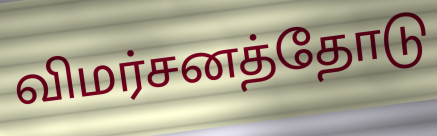
விமர்சனத்தோடு